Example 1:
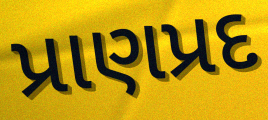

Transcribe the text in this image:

પ્રાણપ્રદ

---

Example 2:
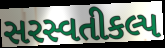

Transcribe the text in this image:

સરસ્વતીકલ્પ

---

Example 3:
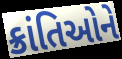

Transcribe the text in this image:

ક્રાંતિઓને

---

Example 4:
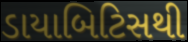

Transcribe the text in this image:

ડાયાબિટિસથી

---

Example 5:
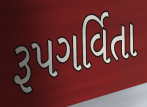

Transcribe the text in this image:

રૂપગર્વિતા